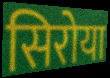
सिरोया